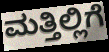
ಮತ್ತಿಲ್ಲಿಗೆ